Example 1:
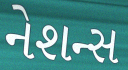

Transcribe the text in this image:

નેશન્સ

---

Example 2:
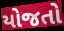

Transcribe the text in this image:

યોજતો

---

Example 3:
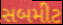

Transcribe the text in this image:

સબમીટ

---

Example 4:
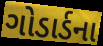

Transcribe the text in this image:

ગોડાર્ડના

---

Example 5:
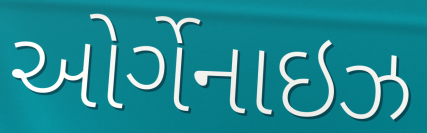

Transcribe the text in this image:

ઓર્ગેનાઇઝ